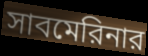
সাবমেরিনার